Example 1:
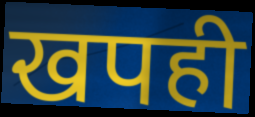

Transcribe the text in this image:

खपही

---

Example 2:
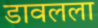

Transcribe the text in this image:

डावलला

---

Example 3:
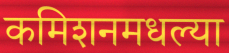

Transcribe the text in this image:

कमिशनमधल्या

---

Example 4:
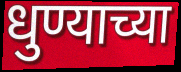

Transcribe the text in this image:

धुण्याच्या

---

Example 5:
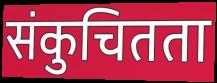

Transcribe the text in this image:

संकुचितता